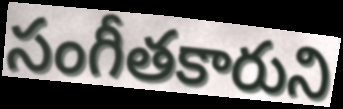
సంగీతకారుని